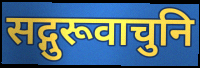
सद्गुरूवाचुनि